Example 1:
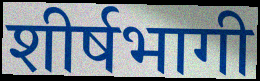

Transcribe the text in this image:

शीर्षभागी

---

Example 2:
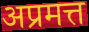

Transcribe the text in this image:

अप्रमत्त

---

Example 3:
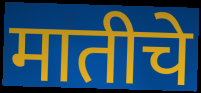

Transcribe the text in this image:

मातीचे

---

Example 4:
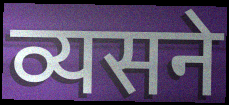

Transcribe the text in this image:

व्यसने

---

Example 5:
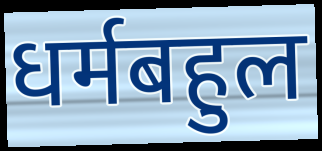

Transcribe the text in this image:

धर्मबहुल